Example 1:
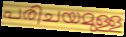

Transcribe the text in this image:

പരിചയമുള്ള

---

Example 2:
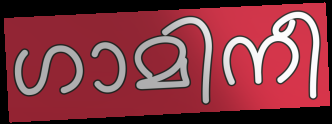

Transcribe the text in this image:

ഗാമിനീ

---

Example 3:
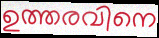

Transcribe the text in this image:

ഉത്തരവിനെ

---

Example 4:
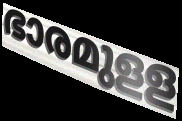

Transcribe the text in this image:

ഭാരമുളള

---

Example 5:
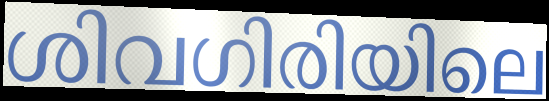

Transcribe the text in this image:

ശിവഗിരിയിലെ